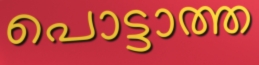
പൊട്ടാത്ത